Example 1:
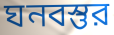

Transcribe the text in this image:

ঘনবস্তুর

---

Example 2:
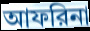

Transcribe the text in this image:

আফরিনা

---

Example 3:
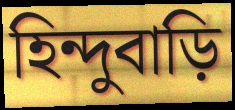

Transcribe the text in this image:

হিন্দুবাড়ি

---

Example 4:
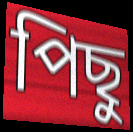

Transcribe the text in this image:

পিছু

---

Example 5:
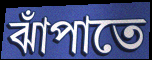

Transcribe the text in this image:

ঝাঁপাতে